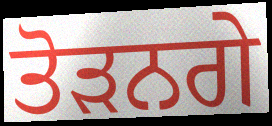
ਤੋੜਨਗੇ